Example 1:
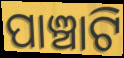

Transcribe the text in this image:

ପାଞ୍ଚାଟି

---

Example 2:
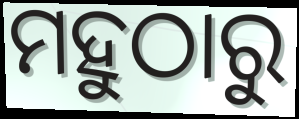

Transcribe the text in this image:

ମହୁଠାରୁ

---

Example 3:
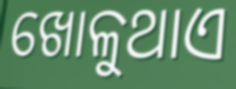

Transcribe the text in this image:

ଖୋଳୁଥାଏ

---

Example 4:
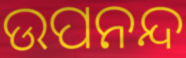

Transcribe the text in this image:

ଉପନନ୍ଦ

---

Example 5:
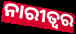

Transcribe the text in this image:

ନାରୀତ୍ୱର